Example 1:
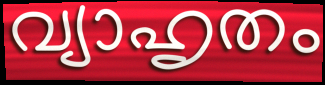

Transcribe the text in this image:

വ്യാഹൃതം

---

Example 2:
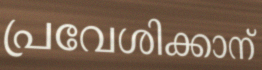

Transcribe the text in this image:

പ്രവേശിക്കാന്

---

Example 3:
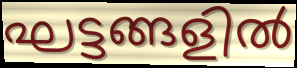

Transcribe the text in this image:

ഘട്ടങ്ങളിൽ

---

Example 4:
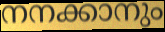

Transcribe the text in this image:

നനക്കാനും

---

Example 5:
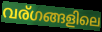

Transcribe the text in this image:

വര്ഗങ്ങളിലെ